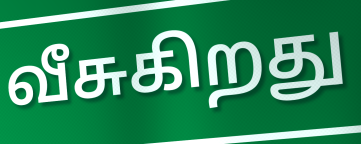
வீசுகிறது